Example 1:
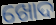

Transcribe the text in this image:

ଖୋଦ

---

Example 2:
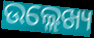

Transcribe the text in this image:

ଉଲ୍ଲେଖ୍ୟ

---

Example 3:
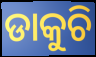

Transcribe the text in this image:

ଡାକୁଚି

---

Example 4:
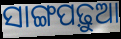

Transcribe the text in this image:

ସାଙ୍ଗପଢ଼ୁଆ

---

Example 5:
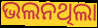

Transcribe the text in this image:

ଭଲନଥିଲା